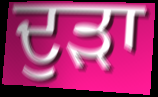
ਦੁੜਾ